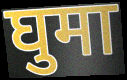
घुमा